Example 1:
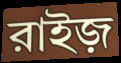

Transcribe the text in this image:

রাইজ়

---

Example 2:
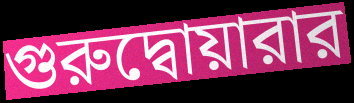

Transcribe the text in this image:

গুরুদ্বোয়ারার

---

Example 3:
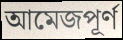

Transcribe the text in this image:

আমেজপূর্ণ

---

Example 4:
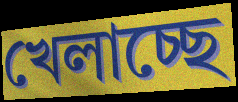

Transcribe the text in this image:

খেলাচ্ছে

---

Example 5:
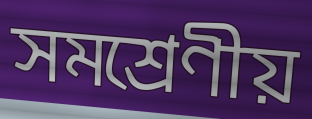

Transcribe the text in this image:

সমশ্রেণীয়